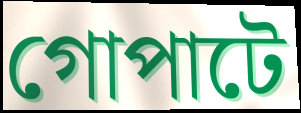
গোপাটে